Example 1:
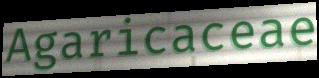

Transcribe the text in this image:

Agaricaceae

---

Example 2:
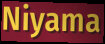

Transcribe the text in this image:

Niyama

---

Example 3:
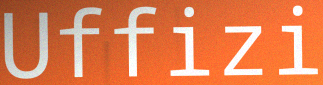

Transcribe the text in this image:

Uffizi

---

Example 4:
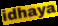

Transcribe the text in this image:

idhaya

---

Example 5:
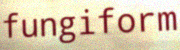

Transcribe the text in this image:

fungiform